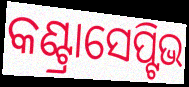
କଣ୍ଟ୍ରାସେପ୍ଟିଭ